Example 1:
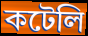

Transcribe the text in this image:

কটেলি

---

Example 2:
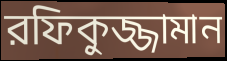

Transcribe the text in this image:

রফিকুজ্জামান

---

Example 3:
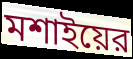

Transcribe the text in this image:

মশাইয়ের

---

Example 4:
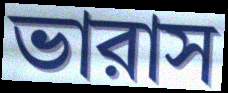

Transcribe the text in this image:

ভারাস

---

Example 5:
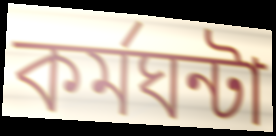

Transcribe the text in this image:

কর্মঘন্টা